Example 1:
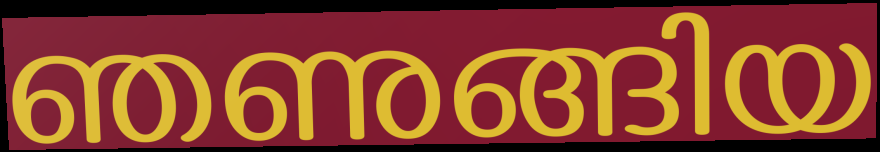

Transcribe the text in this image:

ഞണുങ്ങിയ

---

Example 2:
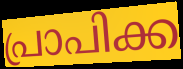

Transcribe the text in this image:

പ്രാപിക്ക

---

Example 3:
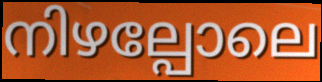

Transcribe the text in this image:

നിഴല്പോലെ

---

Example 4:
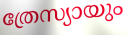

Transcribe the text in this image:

ത്രേസ്യായും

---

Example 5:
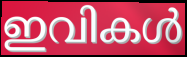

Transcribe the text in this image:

ഇവികൾ